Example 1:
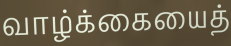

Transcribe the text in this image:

வாழ்க்கையைத்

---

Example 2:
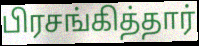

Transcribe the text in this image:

பிரசங்கித்தார்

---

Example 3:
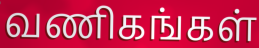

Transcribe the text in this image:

வணிகங்கள்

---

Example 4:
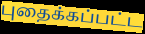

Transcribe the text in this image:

புதைக்கப்பட்ட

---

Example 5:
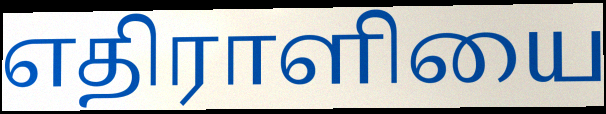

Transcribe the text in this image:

எதிராளியை